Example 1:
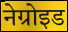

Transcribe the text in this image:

नेग्रोइड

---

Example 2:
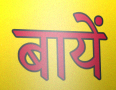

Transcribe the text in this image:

बायें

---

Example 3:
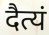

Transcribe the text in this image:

दैत्यं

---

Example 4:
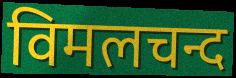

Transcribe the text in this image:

विमलचन्द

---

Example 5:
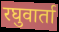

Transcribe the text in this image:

रघुवार्ता